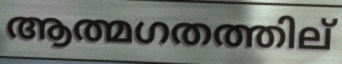
ആത്മഗതത്തില്